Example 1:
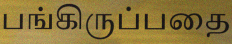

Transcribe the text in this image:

பங்கிருப்பதை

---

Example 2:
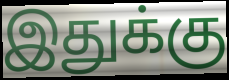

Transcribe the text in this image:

இதுக்கு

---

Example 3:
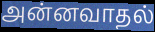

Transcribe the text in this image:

அன்னவாதல்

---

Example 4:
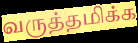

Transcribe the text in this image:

வருத்தமிக்க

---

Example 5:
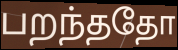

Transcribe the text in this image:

பறந்ததோ